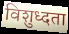
विशुध्दता